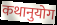
कथानुयोग